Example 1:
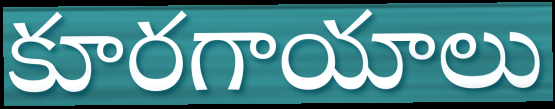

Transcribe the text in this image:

కూరగాయాలు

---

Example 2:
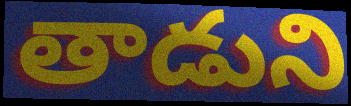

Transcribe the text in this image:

తాడుని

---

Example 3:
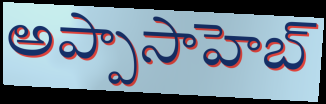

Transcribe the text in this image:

అప్పాసాహెబ్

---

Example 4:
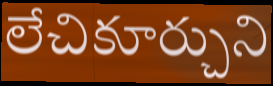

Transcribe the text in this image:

లేచికూర్చుని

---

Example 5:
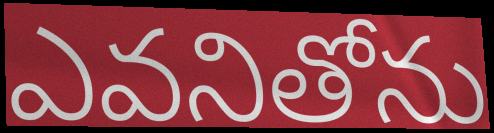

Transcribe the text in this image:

ఎవనితోను